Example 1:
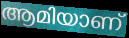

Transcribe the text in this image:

ആമിയാണ്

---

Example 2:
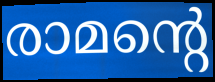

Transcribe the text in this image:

രാമന്റെ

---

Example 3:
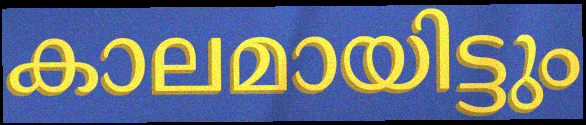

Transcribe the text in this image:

കാലമായിട്ടും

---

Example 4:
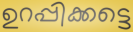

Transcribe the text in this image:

ഉറപ്പിക്കട്ടെ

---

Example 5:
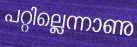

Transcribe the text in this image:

പറ്റില്ലെന്നാണു